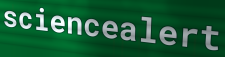
sciencealert